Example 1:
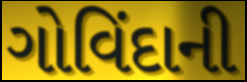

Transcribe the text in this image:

ગોવિંદાની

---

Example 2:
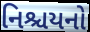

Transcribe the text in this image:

નિશ્ચયનો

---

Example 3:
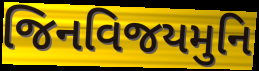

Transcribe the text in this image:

જિનવિજયમુનિ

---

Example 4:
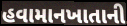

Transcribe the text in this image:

હવામાનખાતાની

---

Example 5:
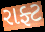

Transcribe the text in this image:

રાફ્ટ